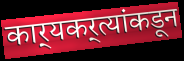
कार्यकर्त्यांकडून